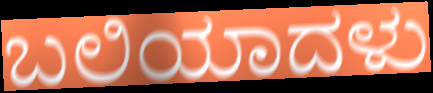
ಬಲಿಯಾದಳು